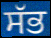
ਸੱਭ